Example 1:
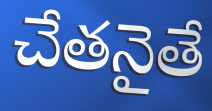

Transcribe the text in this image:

చేతనైతే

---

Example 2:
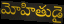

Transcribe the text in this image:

మోహితుడై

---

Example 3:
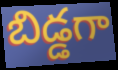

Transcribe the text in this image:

బిడ్డగా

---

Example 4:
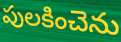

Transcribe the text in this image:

పులకించెను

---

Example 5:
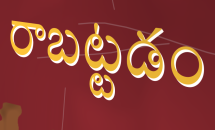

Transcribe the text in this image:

రాబట్టడం